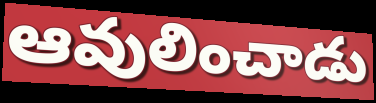
ఆవులించాడు